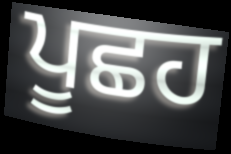
ਪੂਛਹ